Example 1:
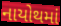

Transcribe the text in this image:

નાયોથમાં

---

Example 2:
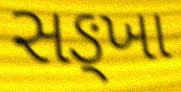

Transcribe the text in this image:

સઙ્ખા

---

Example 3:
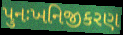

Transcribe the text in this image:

પુનઃખનિજીકરણ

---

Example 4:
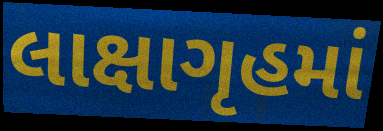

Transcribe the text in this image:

લાક્ષાગૃહમાં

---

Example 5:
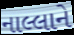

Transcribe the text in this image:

નાલ્લાને